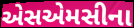
એસએમસીના